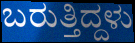
ಬರುತ್ತಿದ್ದಳು